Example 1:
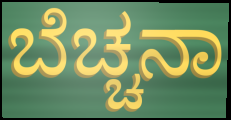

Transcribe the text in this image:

ಬೆಚ್ಚನಾ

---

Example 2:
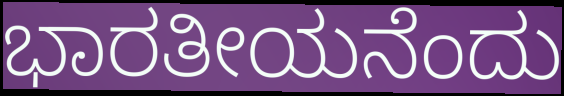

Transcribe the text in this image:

ಭಾರತೀಯನೆಂದು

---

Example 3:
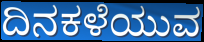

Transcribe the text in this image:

ದಿನಕಳೆಯುವ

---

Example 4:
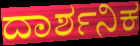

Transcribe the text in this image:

ದಾರ್ಶನಿಕ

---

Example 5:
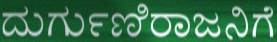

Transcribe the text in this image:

ದುರ್ಗುಣಿರಾಜನಿಗೆ